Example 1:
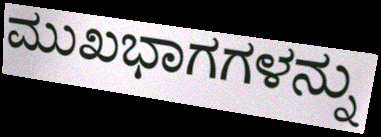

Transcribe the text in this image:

ಮುಖಭಾಗಗಳನ್ನು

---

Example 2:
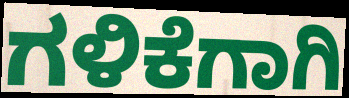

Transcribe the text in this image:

ಗಳಿಕೆಗಾಗಿ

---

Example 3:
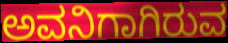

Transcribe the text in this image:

ಅವನಿಗಾಗಿರುವ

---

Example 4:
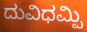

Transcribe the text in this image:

ದುವಿಧಮ್ಪಿ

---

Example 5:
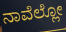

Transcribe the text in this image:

ನಾವೆಲ್ಲೋ